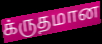
க்ருதமான